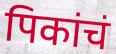
पिकांचं